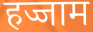
हज्जाम